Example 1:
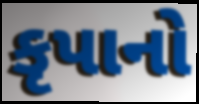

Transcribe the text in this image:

કૃપાનો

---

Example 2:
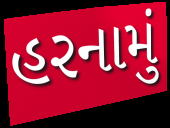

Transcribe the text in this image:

હરનામું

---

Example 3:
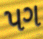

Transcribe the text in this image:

પગ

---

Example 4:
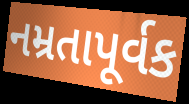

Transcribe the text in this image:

નમ્રતાપૂર્વક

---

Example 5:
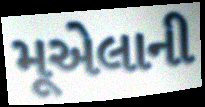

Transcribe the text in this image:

મૂએલાની